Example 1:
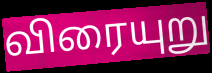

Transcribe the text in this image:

விரையுறு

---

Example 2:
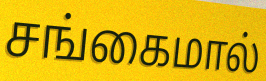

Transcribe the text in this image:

சங்கைமால்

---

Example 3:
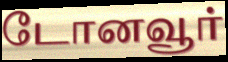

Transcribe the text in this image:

டோனவூர்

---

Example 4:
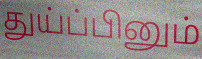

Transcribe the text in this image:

துய்ப்பினும்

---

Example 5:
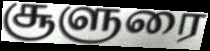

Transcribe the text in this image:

சூளுரை